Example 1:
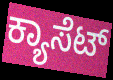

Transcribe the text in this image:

ಕ್ಯಾಸೆಟ್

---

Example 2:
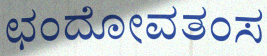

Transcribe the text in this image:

ಛಂದೋವತಂಸ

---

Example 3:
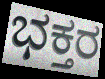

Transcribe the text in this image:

ಭಕ್ತರ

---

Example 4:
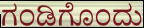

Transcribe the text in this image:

ಗಂಡಿಗೊಂದು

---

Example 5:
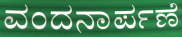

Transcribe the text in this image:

ವಂದನಾರ್ಪಣೆ